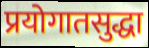
प्रयोगातसुद्धा